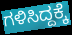
ಗಳಿಸಿದ್ದಕ್ಕೆ